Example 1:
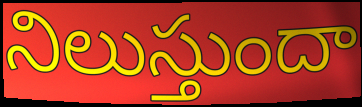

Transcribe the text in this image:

నిలుస్తుందా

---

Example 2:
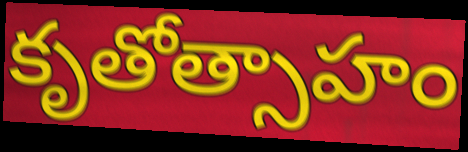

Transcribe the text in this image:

కృతోత్సాహం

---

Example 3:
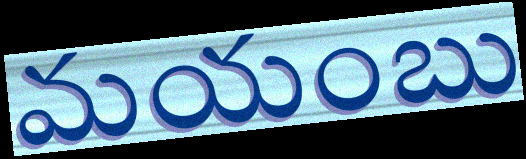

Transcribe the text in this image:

మయంబు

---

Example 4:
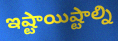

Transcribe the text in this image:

ఇష్టాయిష్టాల్ని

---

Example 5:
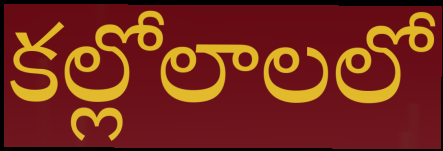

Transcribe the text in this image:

కల్లోలాలలో